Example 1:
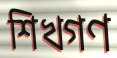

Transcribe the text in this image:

শিখগণ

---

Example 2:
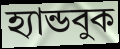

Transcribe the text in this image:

হ্যান্ডবুক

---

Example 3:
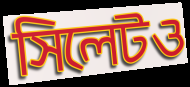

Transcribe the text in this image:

সিলেটও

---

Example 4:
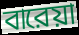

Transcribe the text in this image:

বারেয়া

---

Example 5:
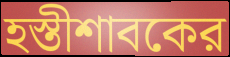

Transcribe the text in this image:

হস্তীশাবকের